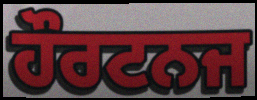
ਹੌਰਟਨਜ